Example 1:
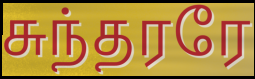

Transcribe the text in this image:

சுந்தரரே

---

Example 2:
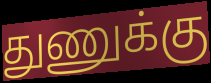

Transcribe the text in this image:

துணுக்கு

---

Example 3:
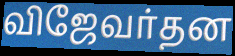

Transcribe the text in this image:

விஜேவர்தன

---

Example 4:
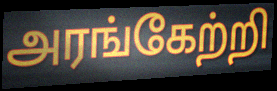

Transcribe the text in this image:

அரங்கேற்றி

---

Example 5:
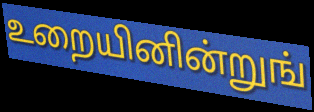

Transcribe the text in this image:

உறையினின்றுங்